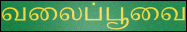
வலைப்பூவை